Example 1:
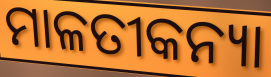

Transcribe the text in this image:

ମାଳତୀକନ୍ୟା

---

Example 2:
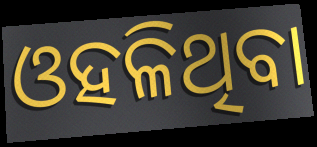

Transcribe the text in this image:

ଓହଳିଥିବା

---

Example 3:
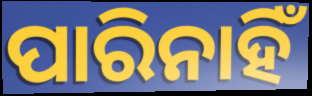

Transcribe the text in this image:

ପାରିନାହିଁ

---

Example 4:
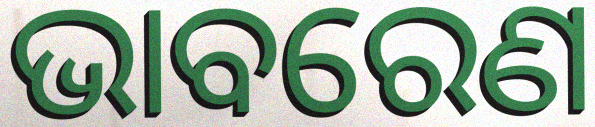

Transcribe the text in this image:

ଭାବରେଣ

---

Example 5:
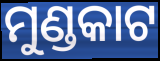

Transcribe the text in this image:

ମୁଣ୍ଡକାଟ